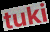
tuki